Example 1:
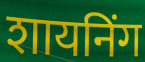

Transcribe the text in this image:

शायनिंग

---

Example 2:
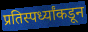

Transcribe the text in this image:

प्रतिस्पर्ध्यांकडून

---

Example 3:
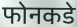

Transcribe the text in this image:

फोनकडे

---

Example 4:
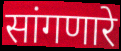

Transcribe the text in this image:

सांगणारे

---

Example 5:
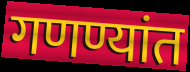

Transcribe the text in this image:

गणण्यांत